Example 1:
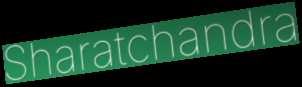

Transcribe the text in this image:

Sharatchandra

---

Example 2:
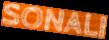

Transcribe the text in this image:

SONALI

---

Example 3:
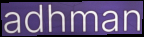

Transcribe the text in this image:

adhman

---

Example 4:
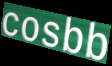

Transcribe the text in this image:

cosbb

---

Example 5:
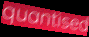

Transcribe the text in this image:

quantised